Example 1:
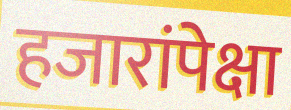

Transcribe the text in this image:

हजारांपेक्षा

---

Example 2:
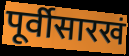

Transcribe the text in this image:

पूर्वीसारखं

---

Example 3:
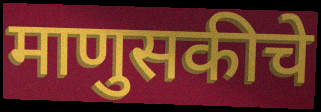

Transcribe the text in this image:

माणुसकीचे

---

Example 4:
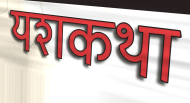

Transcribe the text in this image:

यशकथा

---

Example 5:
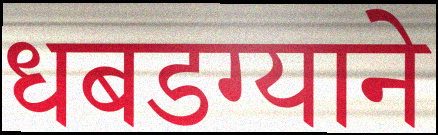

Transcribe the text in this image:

धबडग्याने